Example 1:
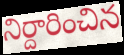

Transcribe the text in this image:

నిర్దారించిన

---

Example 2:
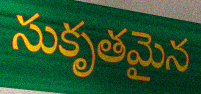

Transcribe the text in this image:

సుకృతమైన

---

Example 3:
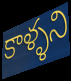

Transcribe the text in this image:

కాళ్ళని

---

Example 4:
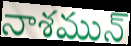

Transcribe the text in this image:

నాశమున్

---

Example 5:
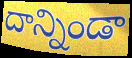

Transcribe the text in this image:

దాన్నిండా